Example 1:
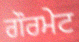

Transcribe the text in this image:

ਗੌਰਮੇਟ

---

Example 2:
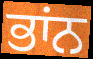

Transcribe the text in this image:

ਭਾਂਨ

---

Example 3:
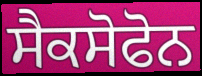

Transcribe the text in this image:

ਸੈਕਸੋਫੋਨ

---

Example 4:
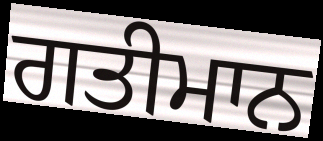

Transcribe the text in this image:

ਗਤੀਮਾਨ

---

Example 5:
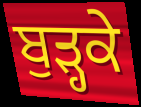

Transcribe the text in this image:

ਬੁੜ੍ਹਕੇ